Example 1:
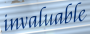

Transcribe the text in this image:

invaluable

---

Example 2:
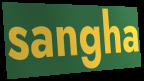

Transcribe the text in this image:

sangha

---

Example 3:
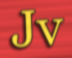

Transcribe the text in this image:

Jv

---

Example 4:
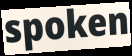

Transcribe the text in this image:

spoken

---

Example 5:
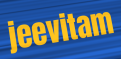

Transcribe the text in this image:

jeevitam